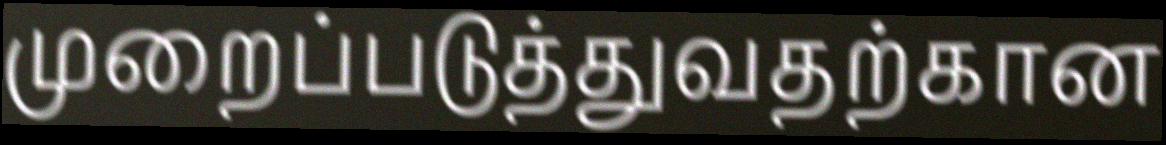
முறைப்படுத்துவதற்கான